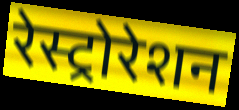
रेस्ट्रोरेशन